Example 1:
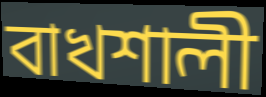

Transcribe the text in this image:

বাখশালী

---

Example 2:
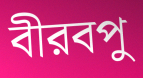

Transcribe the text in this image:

বীরবপু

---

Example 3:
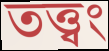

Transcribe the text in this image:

তত্ত্বং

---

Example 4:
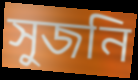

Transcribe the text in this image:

সুজনি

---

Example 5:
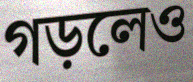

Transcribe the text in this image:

গড়লেও